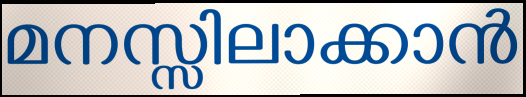
മനസ്സിലാക്കാൻ